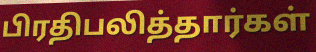
பிரதிபலித்தார்கள்